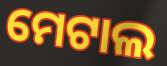
ମେଟାଲ